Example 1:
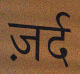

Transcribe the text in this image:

ज़र्द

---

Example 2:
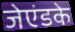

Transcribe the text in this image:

जेएंडके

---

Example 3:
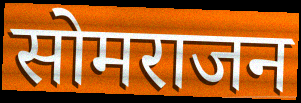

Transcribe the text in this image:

सोमराजन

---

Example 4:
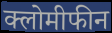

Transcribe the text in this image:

क्लोमीफीन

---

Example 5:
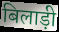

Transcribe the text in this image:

बिलाड़ी